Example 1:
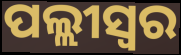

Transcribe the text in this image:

ପଲ୍ଲୀସ୍ଵର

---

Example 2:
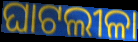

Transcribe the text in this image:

ଘାଟଲୀଳା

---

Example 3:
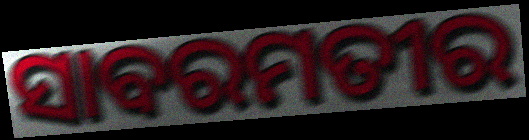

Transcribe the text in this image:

ସାବରମତୀର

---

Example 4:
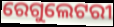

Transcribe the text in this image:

ରେଗୁଲେଟରୀ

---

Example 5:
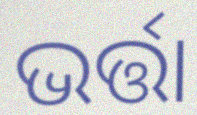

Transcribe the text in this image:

ଭର୍ତ୍ତା